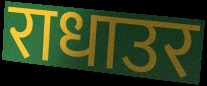
राधाउर